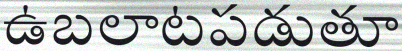
ఉబలాటపడుతూ